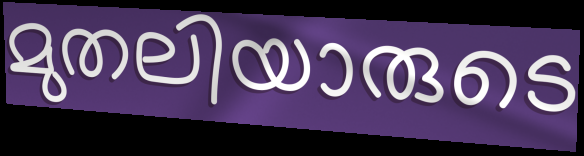
മുതലിയാരുടെ